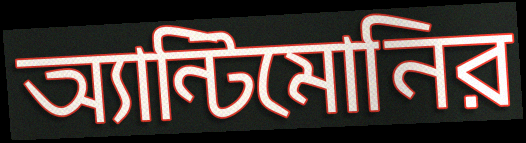
অ্যান্টিমোনির